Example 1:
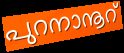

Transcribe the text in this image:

പുറനാനൂറ്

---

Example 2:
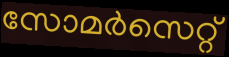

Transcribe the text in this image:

സോമർസെറ്റ്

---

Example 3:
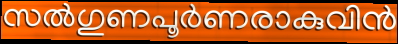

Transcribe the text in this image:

സൽഗുണപൂർണരാകുവിൻ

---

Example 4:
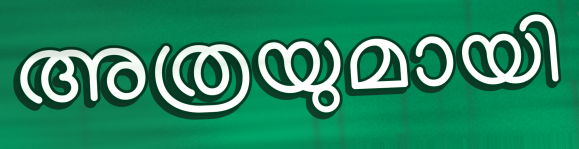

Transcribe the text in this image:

അത്രയുമായി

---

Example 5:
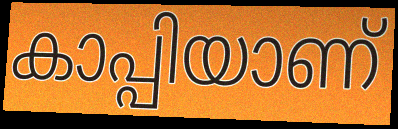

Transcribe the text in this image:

കാപ്പിയാണ്